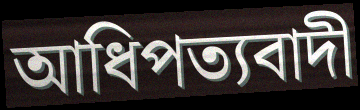
আধিপত্যবাদী